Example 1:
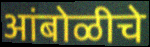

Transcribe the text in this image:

आंबोळीचे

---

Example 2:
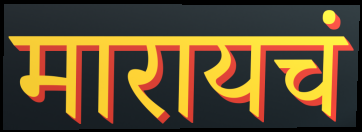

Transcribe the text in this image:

मारायचं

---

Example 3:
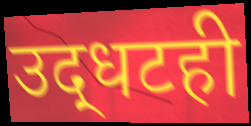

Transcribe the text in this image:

उद्धटही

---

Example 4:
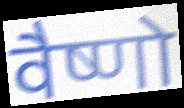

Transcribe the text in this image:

वैष्णो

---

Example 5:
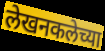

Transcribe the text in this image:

लेखनकलेच्या